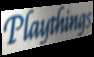
Playthings